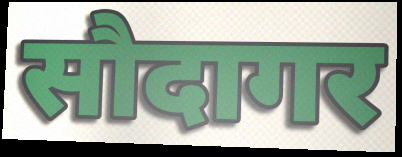
सौदागर